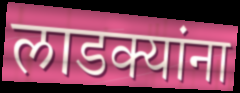
लाडक्यांना